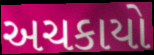
અચકાયો